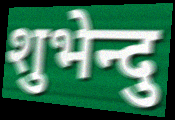
शुभेन्दु